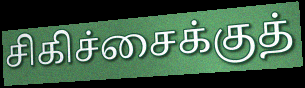
சிகிச்சைக்குத்